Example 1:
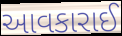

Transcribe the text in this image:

આવકારાઈ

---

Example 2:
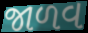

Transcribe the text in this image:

જાળવ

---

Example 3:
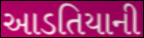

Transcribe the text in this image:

આડતિયાની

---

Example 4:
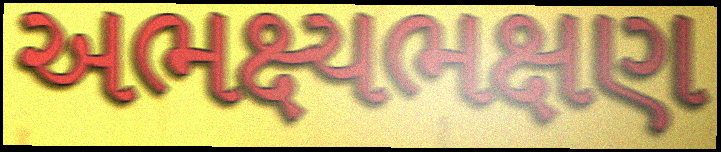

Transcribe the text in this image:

અભક્ષ્યભક્ષણ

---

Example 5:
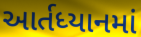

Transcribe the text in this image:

આર્તધ્યાનમાં